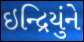
ઇન્દ્રિયુંને